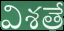
విశతే